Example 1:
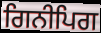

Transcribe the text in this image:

ਗਿਨੀਪਿਗ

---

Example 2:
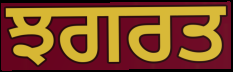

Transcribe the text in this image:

ਝਗਰਤ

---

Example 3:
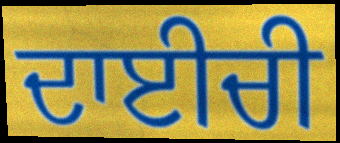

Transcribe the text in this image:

ਦਾਈਚੀ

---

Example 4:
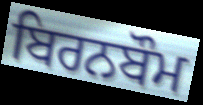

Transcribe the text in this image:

ਬਿਰਨਬੌਮ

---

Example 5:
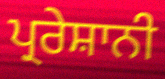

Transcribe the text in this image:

ਪ੍ਰਰੇਸ਼ਾਨੀ